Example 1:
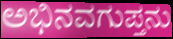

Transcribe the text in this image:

ಅಭಿನವಗುಪ್ತನು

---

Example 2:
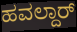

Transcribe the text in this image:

ಹವಲ್ದಾರ್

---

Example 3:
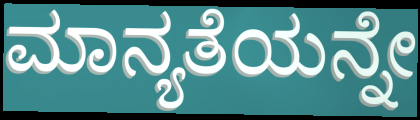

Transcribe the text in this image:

ಮಾನ್ಯತೆಯನ್ನೇ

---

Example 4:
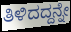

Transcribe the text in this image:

ತಿಳಿದದ್ದನ್ನೇ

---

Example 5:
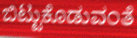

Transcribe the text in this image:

ಬಿಟ್ಟುಕೊಡುವಂತೆ